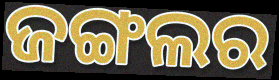
ଜଙ୍ଗଲର